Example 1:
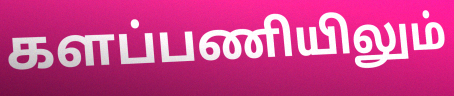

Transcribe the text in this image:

களப்பணியிலும்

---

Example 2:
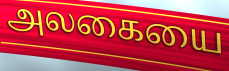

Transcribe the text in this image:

அலகையை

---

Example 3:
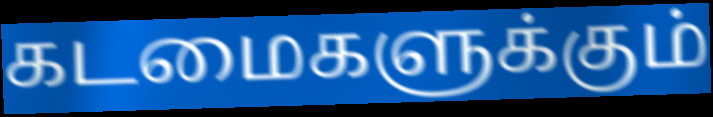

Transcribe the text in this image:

கடமைகளுக்கும்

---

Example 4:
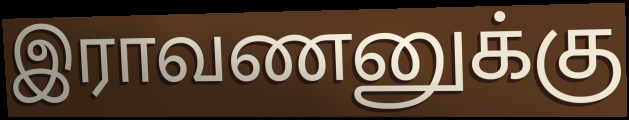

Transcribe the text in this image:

இராவணனுக்கு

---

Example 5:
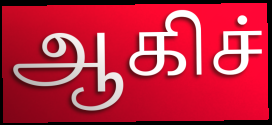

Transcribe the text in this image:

ஆகிச்